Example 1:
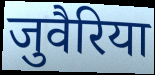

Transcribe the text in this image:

जुवैरिया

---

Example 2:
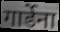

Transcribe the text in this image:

गार्डेना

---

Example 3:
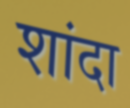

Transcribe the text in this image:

शांदा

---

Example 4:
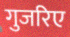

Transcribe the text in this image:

गुजरिए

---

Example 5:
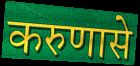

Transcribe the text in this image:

करुणासे